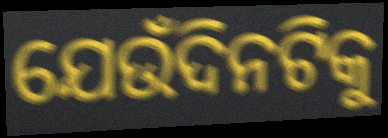
ଯେଉଁଦିନଟିକୁ